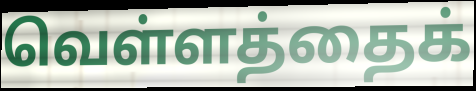
வெள்ளத்தைக்